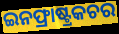
ଇନଫ୍ରାଷ୍ଟ୍ରକଚର